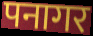
पनागर